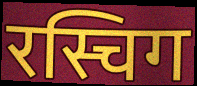
रस्चिग